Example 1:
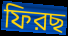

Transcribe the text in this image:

ফিরছ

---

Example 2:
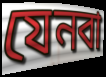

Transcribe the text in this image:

যেনবা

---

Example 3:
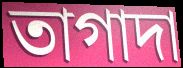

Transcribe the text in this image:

তাগাদা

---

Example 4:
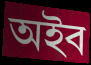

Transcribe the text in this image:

অইব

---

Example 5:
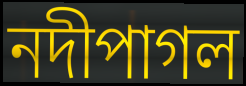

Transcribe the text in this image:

নদীপাগল